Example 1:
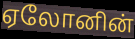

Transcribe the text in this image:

ஏலோனின்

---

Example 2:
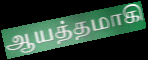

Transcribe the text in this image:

ஆயத்தமாகி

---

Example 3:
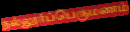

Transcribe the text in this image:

நல்லூர்ப்பெருமணம்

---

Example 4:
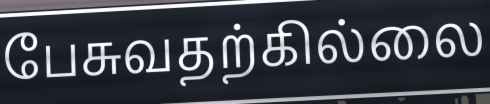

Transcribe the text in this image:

பேசுவதற்கில்லை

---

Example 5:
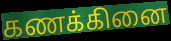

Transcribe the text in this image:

கணக்கினை